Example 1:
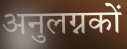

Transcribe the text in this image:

अनुलग्नकों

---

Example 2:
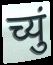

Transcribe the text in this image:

च्युं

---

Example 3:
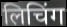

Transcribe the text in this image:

लिचिंग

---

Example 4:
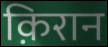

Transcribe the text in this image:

क़िरान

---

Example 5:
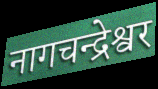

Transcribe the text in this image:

नागचन्द्रेश्वर